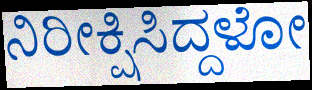
ನಿರೀಕ್ಷಿಸಿದ್ದಳೋ